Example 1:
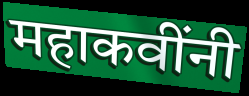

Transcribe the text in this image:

महाकवींनी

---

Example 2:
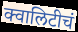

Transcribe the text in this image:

क्वालिटीचं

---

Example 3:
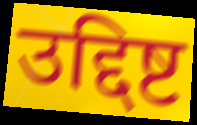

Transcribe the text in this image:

उद्दिष्ट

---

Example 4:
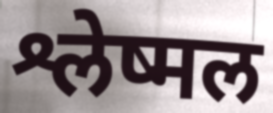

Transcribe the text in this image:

श्लेष्मल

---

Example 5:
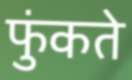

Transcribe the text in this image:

फुंकते